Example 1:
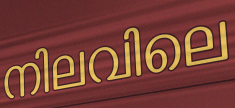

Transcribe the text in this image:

നിലവിലെ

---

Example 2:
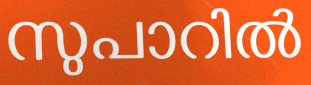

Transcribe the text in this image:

സുപാറിൽ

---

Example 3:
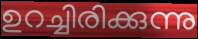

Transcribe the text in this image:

ഉറച്ചിരിക്കുന്നു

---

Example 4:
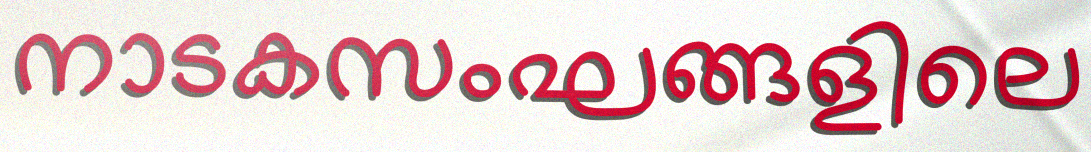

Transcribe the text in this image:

നാടകസംഘങ്ങളിലെ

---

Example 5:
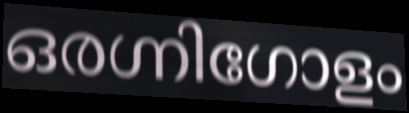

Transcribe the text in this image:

ഒരഗ്നിഗോളം